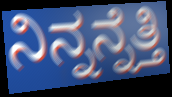
ನಿನ್ನನ್ನೆತ್ತಿ